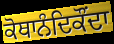
ਕੋਥਾਨੰਦਿਕੌਂਦਾ